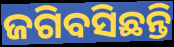
ଜଗିବସିଛନ୍ତି